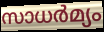
സാധർമ്യം